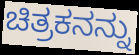
ಚಿತ್ರಕನನ್ನು